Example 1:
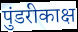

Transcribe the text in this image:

पुंडरीकाक्ष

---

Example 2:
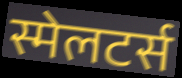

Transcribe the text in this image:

स्मेलटर्स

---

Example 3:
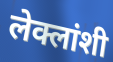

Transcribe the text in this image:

लेक्लांशी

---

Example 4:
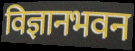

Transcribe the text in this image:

विज्ञानभवन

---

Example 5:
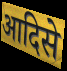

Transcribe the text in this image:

आदिसे